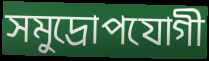
সমুদ্রোপযোগী